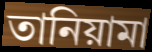
তানিয়ামা